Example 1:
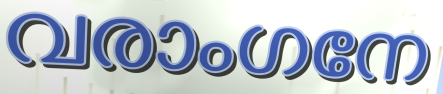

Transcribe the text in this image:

വരാംഗനേ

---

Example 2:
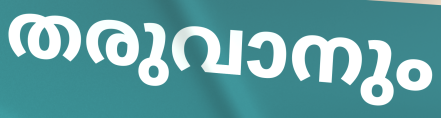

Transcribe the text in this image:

തരുവാനും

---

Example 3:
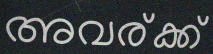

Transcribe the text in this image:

അവര്ക്ക്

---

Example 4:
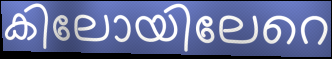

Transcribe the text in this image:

കിലോയിലേറെ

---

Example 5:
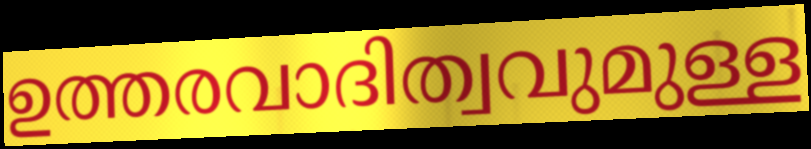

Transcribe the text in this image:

ഉത്തരവാദിത്വവുമുള്ള